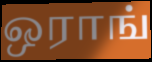
ஒராங்